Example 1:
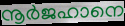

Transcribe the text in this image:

നൂർജഹാനെ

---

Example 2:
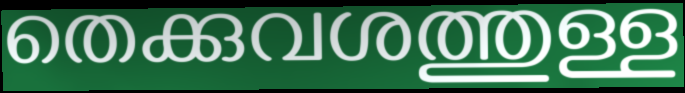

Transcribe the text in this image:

തെക്കുവശത്തുള്ള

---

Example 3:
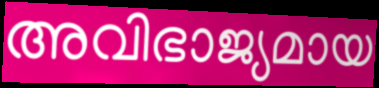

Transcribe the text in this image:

അവിഭാജ്യമായ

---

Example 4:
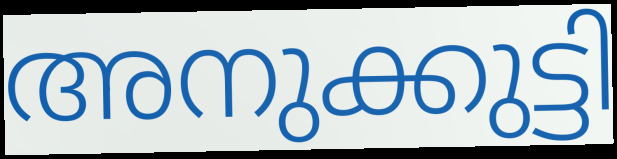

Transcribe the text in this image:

അനുക്കുട്ടി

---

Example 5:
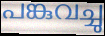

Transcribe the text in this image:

പങ്കുവച്ചു